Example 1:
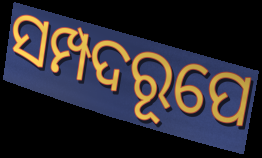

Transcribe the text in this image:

ସମ୍ପଦରୂପେ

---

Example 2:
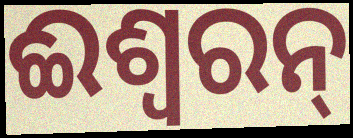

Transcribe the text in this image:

ଈଶ୍ୱରନ୍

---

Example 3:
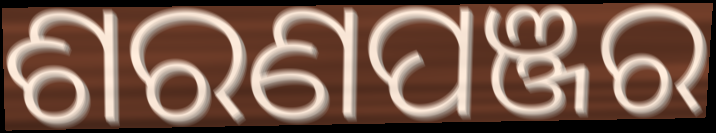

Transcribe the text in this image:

ଶରଣପଞ୍ଜର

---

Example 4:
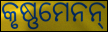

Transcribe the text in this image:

କୃଷ୍ଣମେନନ୍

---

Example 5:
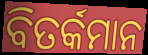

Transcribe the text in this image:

ବିତର୍କମାନ